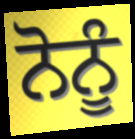
ਨੋਨੂੰ